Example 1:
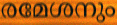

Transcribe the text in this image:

രമേശനും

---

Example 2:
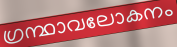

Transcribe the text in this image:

ഗ്രന്ഥാവലോകനം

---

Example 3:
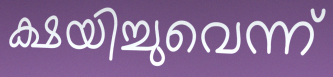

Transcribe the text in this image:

ക്ഷയിച്ചുവെന്ന്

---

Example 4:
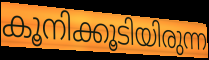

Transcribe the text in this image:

കൂനിക്കൂടിയിരുന്ന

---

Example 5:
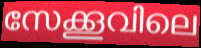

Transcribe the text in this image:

സേക്കൂവിലെ